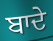
ਬਾਦੇ